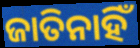
ଜାତିନାହିଁ